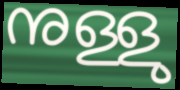
നുള്ളു